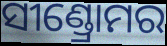
ସୀଣ୍ଡ୍ରୋମର